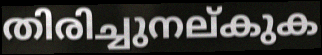
തിരിച്ചുനല്കുക